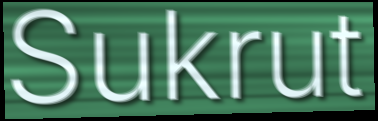
Sukrut